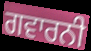
ਗਵਾਰਨੀ